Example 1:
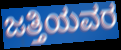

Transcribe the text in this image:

ಜತ್ತಿಯವರ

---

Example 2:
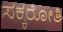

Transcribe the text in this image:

ಸಕ್ಕರೋತಿ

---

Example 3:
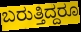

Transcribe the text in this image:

ಬರುತ್ತಿದ್ದರೂ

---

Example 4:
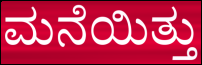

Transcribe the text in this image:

ಮನೆಯಿತ್ತು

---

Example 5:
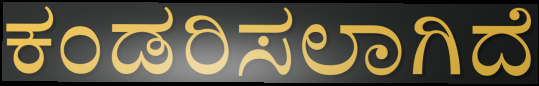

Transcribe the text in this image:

ಕಂಡರಿಸಲಾಗಿದೆ